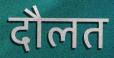
दौलत